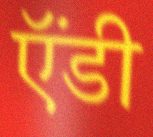
ऍंडी